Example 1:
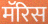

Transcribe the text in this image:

मॅरिस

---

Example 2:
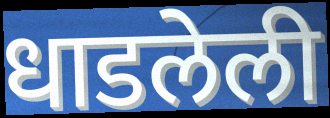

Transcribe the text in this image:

धाडलेली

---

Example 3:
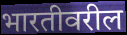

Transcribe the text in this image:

भारतीवरील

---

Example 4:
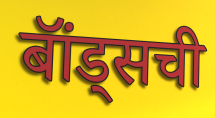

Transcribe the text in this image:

बॉंड्सची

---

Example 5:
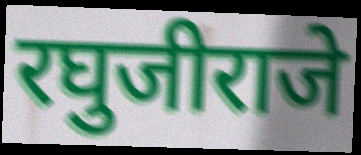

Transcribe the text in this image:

रघुजीराजे